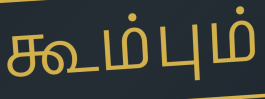
கூம்பும்